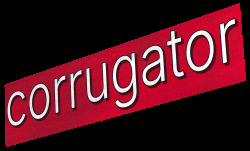
corrugator